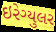
ઇરેગ્યુલર